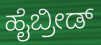
ಹೈಬ್ರೀಡ್